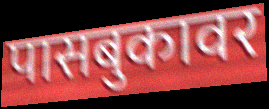
पासबुकावर